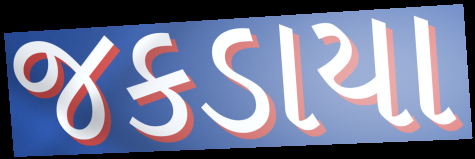
જકડાયા